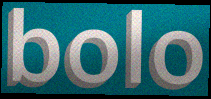
bolo